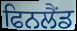
ਫਿਨਲੈਂਡ